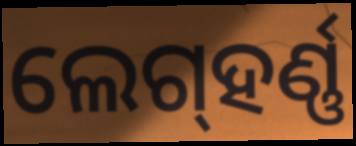
ଲେଗ୍‌ହର୍ଣ୍ଣ